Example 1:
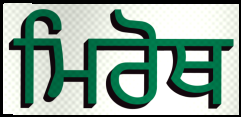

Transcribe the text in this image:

ਮਿਰੋਥ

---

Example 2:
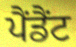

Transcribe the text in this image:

ਪੈਂਡੈਂਟ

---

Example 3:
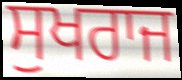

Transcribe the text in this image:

ਸੁਖਰਾਜ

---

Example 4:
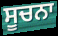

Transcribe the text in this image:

ਸੂਚਨਾ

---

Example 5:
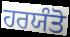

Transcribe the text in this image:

ਹਰਯੰਤੋ